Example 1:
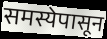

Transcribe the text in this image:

समस्येपासून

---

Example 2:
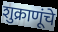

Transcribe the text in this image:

शुक्राणूंचे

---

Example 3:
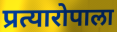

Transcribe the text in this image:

प्रत्यारोपाला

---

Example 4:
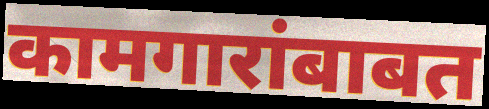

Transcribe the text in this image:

कामगारांबाबत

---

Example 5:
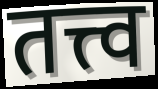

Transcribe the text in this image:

तत्त्व